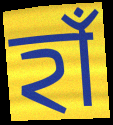
হাঁ